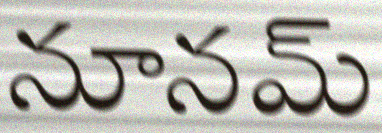
నూనమ్